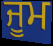
ਜੂਮ